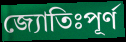
জ্যোতিঃপূর্ণ